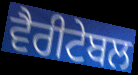
ਵੈਰੀਟੇਬਲ